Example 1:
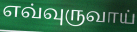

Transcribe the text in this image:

எவ்வுருவாய்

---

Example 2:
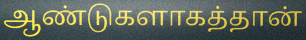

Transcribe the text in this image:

ஆண்டுகளாகத்தான்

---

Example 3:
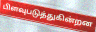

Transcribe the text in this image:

பிளவுபடுத்துகின்றன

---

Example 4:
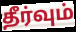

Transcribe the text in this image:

தீர்வும்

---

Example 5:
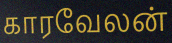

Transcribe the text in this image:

காரவேலன்